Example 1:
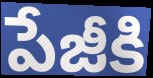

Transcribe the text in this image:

పేజీకి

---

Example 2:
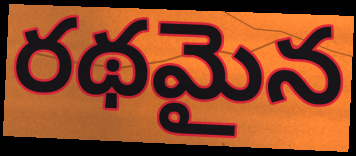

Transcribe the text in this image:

రథమైన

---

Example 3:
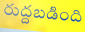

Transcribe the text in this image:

రుద్దబడింది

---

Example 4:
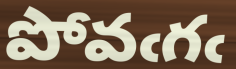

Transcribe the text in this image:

పోవఁగఁ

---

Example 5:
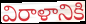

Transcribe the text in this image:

విరాళానికి